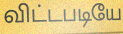
விட்டபடியே